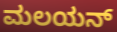
ಮಲಯನ್